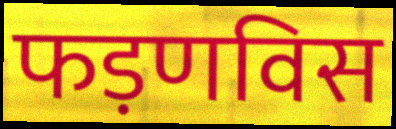
फड़णविस